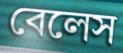
বেলেস